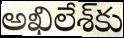
అఖిలేశ్‌కు